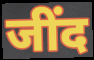
जींद